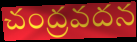
చంద్రవదన